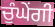
ਚੁੰਘੇਂਗੀ